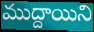
ముద్దాయిని